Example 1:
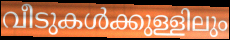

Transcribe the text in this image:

വീടുകൾക്കുള്ളിലും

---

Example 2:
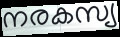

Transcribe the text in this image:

നരകസ്യ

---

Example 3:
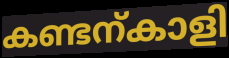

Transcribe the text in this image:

കണ്ടന്കാളി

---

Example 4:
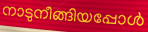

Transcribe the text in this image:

നാടുനീങ്ങിയപ്പോൾ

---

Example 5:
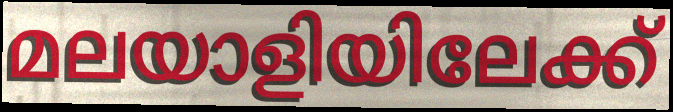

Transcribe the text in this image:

മലയാളിയിലേക്ക്